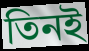
তিনই